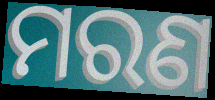
ମରଣ